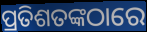
ପ୍ରତିଶତଙ୍କଠାରେ